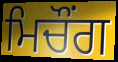
ਮਿਚੌਂਗ